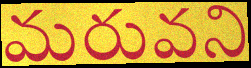
మరువని